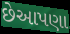
છેઆપણા